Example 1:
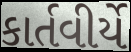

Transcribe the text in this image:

કાર્તવીર્યે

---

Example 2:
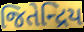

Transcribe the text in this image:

જિતેન્દ્રિય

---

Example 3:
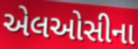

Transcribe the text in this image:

એલઓસીના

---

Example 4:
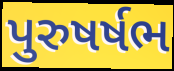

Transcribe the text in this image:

પુરુષર્ષભ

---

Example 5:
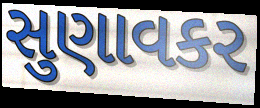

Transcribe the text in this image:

સુણાવકર